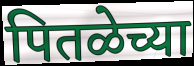
पितळेच्या